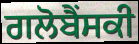
ਗਲੋਬੈਂਸਕੀ